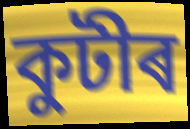
কুটীৰ